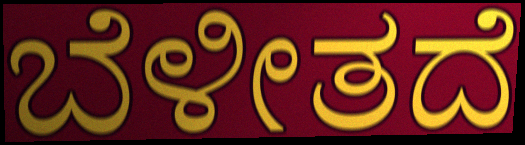
ಬೆಳೀತದೆ